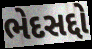
ભેદસદ્દો